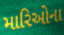
મારિઓના